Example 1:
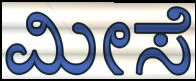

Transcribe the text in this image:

ಮೀಸೆ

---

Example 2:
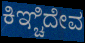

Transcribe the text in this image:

ಕಿಞ್ಚಿದೇವ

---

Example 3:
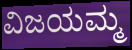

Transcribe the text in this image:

ವಿಜಯಮ್ಮ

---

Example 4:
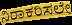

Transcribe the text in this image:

ನಿರಾಕರಿಸಲೇ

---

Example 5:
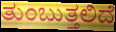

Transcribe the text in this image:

ತುಂಬುತ್ತಲಿದೆ